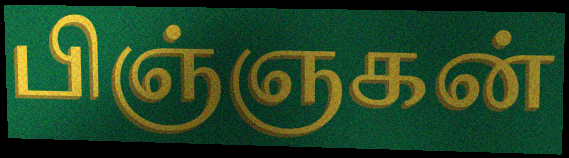
பிஞ்ஞகன்